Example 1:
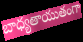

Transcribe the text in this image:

బాధ్యతాయుతంగా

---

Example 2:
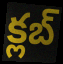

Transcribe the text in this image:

క్లబ్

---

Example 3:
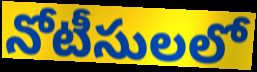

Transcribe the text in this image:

నోటీసులలో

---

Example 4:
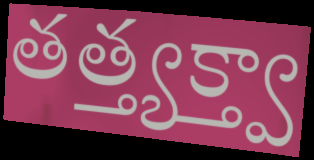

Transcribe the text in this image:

తత్త్యక్త్వా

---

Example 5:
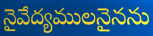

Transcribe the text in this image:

నైవేద్యములనైనను